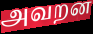
அவறன